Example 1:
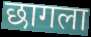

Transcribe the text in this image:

छागला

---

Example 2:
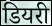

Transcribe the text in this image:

डियरी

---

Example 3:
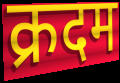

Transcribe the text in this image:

क्रदम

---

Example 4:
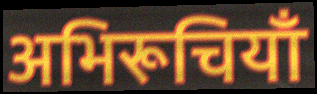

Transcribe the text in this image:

अभिरूचियाँ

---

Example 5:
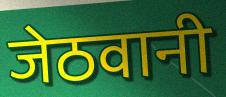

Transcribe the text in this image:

जेठवानी